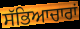
ਸੱਭਿਆਚਾਰਾਂ